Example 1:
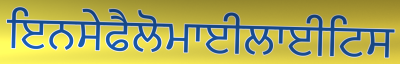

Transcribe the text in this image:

ਇਨਸੇਫੈਲੋਮਾਈਲਾਈਟਿਸ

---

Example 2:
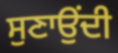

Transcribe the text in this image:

ਸੁਣਾਉਂਦੀ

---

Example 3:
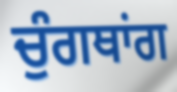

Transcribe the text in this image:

ਚੁੰਗਥਾਂਗ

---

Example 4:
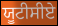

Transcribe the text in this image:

ਯੂਟੀਸੀਏ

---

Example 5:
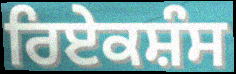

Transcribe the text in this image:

ਰਿਏਕਸ਼ੰਸ